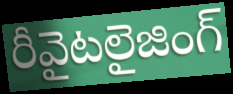
రీవైటలైజింగ్